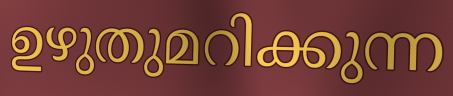
ഉഴുതുമറിക്കുന്ന